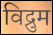
विद्रुम